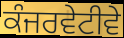
ਕੰਜਰਵੇਟੀਵੇ